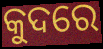
କୁଦରେ